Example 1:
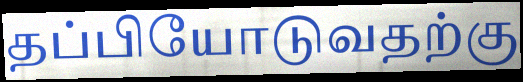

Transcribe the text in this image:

தப்பியோடுவதற்கு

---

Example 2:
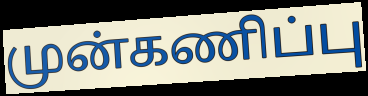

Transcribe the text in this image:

முன்கணிப்பு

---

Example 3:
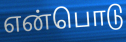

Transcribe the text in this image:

என்பொடு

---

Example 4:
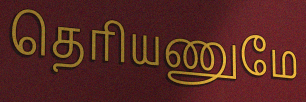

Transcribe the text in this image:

தெரியணுமே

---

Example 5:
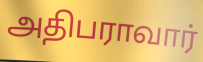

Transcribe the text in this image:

அதிபராவார்